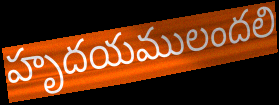
హృదయములందలి